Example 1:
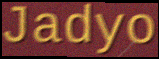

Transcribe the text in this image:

Jadyo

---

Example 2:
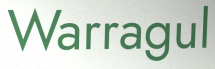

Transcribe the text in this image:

Warragul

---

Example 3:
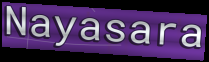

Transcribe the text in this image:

Nayasara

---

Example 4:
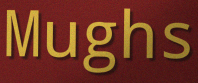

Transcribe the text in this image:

Mughs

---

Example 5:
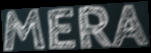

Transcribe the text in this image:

MERA